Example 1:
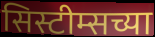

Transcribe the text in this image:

सिस्टीम्सच्या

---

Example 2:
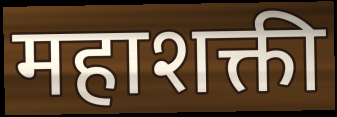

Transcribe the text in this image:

महाशक्ती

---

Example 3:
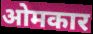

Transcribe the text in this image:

ओमकार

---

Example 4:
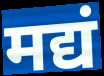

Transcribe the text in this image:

मद्यं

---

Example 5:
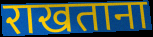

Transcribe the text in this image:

राखताना